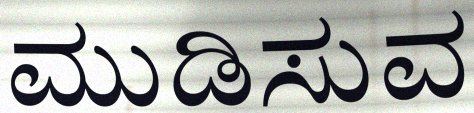
ಮುಡಿಸುವ